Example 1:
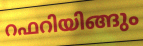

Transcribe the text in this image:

റഫറിയിങ്ങും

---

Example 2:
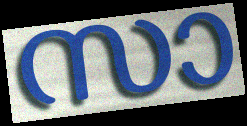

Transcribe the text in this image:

സാ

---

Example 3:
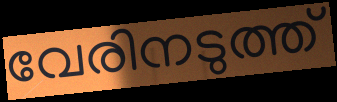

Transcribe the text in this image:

വേരിനടുത്ത്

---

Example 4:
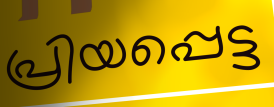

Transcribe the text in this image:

പ്രിയപ്പെട്ട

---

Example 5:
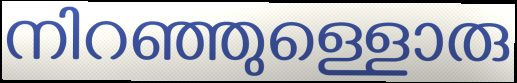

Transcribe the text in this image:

നിറഞ്ഞുള്ളൊരു